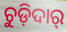
ଚୁଡ଼ିଦାର୍